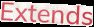
Extends